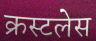
क्रस्टलेस